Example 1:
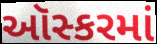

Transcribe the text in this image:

ઑસ્કરમાં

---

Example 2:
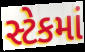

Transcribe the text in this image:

સ્ટેકમાં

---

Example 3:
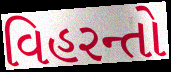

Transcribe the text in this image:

વિહરન્તો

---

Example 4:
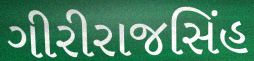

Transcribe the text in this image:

ગીરીરાજસિંહ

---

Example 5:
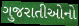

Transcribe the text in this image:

ગુજરાતીઓનો